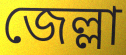
জেল্লা